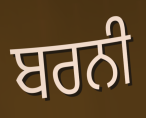
ਬਰਨੀ